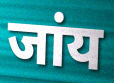
जांय